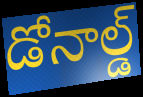
డోనాల్డ్